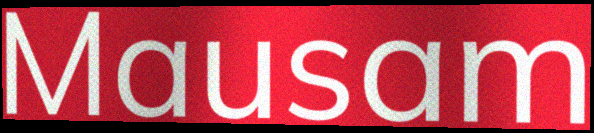
Mausam